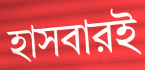
হাসবারই